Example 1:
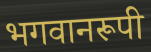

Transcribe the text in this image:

भगवानरूपी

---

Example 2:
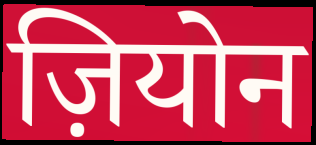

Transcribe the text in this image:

ज़ियोन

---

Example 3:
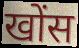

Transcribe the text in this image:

खोंस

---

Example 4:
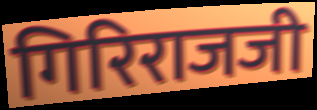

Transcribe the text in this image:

गिरिराजजी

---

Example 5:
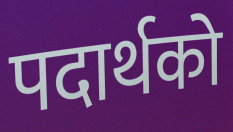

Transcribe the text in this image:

पदार्थको